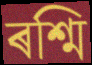
ৰশ্মি